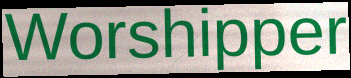
Worshipper